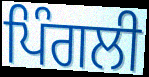
ਪਿੰਗਲੀ